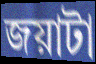
জয়াটা